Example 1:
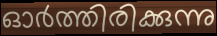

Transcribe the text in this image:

ഓർത്തിരിക്കുന്നു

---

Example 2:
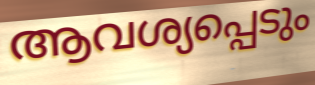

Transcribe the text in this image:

ആവശ്യപ്പെടും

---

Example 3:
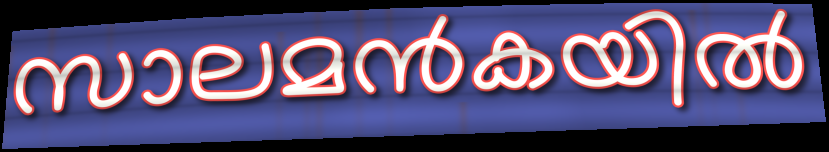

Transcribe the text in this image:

സാലമൻകയിൽ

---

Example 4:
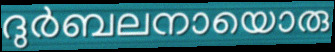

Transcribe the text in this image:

ദുർബലനായൊരു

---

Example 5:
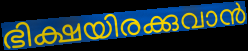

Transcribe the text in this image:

ഭിക്ഷയിരക്കുവാൻ